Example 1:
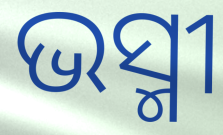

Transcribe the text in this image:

ଭସ୍ମୀ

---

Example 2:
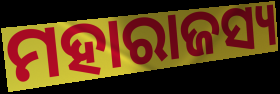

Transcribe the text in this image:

ମହାରାଜସ୍ୟ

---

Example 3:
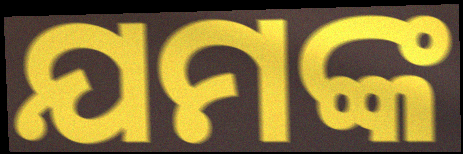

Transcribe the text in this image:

ଯମଙ୍କ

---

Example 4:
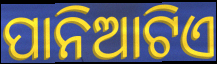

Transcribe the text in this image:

ପାନିଆଟିଏ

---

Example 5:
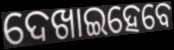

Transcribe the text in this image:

ଦେଖାଇହେବେ